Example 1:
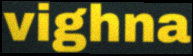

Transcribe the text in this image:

vighna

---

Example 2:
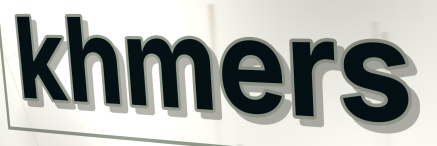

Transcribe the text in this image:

khmers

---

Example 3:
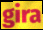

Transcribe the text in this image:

gira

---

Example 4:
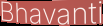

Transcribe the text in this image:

Bhavanti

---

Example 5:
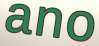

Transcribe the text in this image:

ano